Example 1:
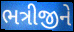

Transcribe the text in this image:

ભત્રીજીને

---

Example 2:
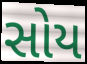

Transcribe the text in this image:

સોય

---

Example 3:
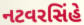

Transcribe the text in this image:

નટવરસિંહે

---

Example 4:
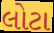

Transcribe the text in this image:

લોટા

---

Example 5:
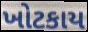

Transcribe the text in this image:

ખોટકાય